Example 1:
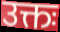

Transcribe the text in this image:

उक्तः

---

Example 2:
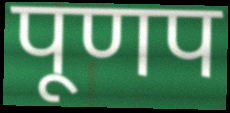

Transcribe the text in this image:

पूणप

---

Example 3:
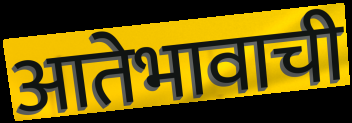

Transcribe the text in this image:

आतेभावाची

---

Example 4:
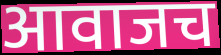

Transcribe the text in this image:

आवाजच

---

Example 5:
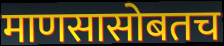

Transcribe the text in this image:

माणसासोबतच